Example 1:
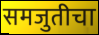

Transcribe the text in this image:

समजुतीचा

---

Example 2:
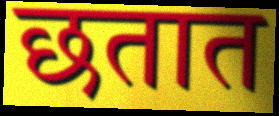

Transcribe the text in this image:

छतात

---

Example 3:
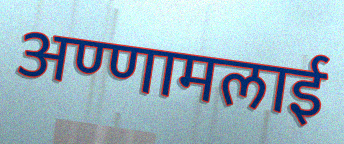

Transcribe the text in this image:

अण्णामलाई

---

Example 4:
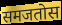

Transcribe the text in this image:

समजतोस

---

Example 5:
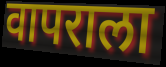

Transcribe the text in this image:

वापराला